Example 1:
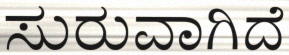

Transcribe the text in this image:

ಸುರುವಾಗಿದೆ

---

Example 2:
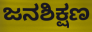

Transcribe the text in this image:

ಜನಶಿಕ್ಷಣ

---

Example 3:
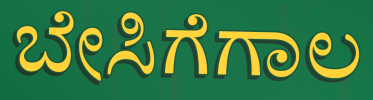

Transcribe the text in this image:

ಬೇಸಿಗೆಗಾಲ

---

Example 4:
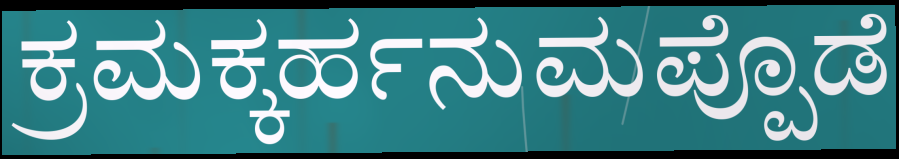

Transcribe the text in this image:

ಕ್ರಮಕ್ಕರ್ಹನುಮಪ್ಪೊಡೆ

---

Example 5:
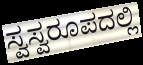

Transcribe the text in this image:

ಸ್ವಸ್ವರೂಪದಲ್ಲಿ